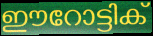
ഈറോട്ടിക്